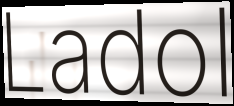
Ladol